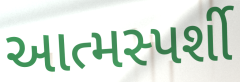
આત્મસ્પર્શી